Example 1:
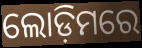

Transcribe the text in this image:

ଲୋଡ଼ିମରେ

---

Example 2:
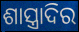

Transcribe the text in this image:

ଶାସ୍ତ୍ରାଦିର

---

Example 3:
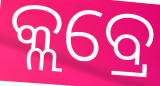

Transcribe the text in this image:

କ୍ଲବ୍ରେ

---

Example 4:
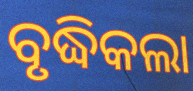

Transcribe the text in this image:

ବୃଦ୍ଧିକଲା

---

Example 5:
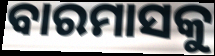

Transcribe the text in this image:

ବାରମାସକୁ